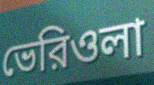
ভেরিওলা